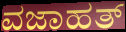
ವಜಾಹತ್